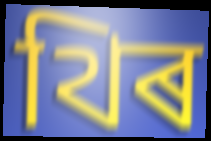
থিৰ